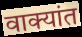
वाक्यांत